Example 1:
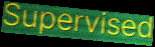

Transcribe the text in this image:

Supervised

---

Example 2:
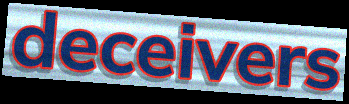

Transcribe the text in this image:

deceivers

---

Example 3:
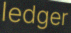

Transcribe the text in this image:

ledger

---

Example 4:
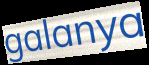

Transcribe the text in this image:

galanya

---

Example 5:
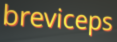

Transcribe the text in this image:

breviceps